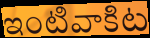
ఇంటివాకిట